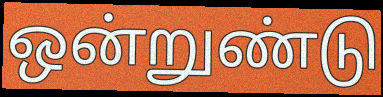
ஒன்றுண்டு